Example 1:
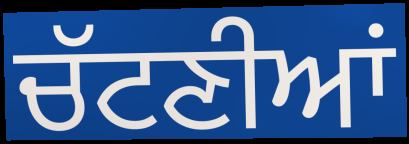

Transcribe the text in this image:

ਚੱਟਣੀਆਂ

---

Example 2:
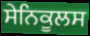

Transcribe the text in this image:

ਸੇਨਿਕੂਲਸ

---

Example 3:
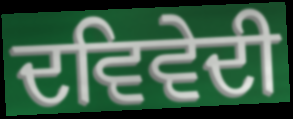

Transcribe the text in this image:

ਦਵਿਵੇਦੀ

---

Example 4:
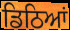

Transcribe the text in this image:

ਡਿਠਿਆਂ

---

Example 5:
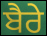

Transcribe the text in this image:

ਬੈਰੇ